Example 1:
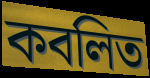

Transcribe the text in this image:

কবলিত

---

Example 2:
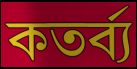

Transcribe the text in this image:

কতর্ব্য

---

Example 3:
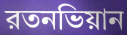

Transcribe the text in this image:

রতনভিয়ান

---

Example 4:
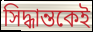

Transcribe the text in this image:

সিদ্ধান্তকেই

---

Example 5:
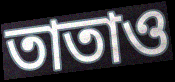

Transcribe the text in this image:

তাতাও